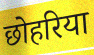
छोहरिया